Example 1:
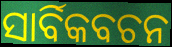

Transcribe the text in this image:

ସାର୍ବିକବଚନ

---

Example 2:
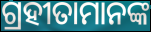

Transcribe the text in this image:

ଗ୍ରହୀତାମାନଙ୍କ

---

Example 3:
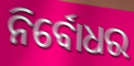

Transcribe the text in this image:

ନିର୍ବୋଧର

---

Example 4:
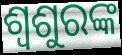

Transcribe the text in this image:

ଶ୍ୱଶୁରଙ୍କ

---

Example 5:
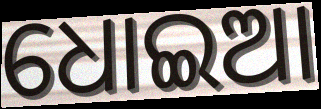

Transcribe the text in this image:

ଧୋଇଆ